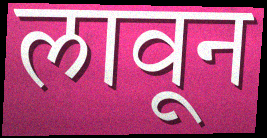
लावून